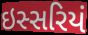
ઇસ્સરિયં